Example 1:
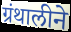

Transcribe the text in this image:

ग्रंथालीने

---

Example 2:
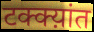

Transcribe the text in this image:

टक्क्य़ांत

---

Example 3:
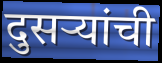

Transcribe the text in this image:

दुसऱ्यांची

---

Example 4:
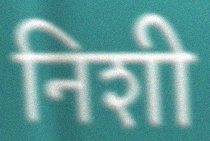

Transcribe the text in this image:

निशी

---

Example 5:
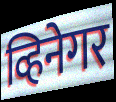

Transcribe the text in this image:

व्हिनेगर